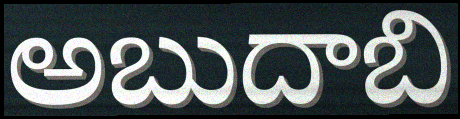
అబుదాబి